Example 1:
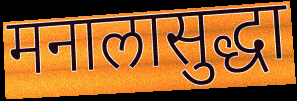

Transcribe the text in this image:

मनालासुद्धा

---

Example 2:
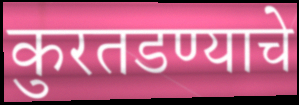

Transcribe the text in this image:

कुरतडण्याचे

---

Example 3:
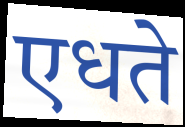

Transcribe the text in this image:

एधते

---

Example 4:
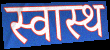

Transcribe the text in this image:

स्वास्थ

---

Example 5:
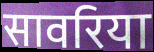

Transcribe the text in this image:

सावरिया